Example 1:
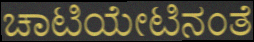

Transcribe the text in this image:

ಚಾಟಿಯೇಟಿನಂತೆ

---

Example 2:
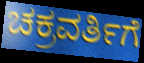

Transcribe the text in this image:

ಚಕ್ರವರ್ತಿಗೆ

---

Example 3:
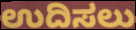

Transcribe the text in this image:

ಉದಿಸಲು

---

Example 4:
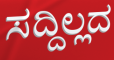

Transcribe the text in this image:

ಸದ್ದಿಲ್ಲದ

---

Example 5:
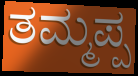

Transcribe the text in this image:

ತಮ್ಮಪ್ಪ